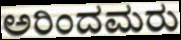
ಅರಿಂದಮರು